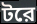
টরে